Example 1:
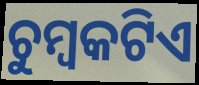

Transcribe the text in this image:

ଚୁମ୍ବକଟିଏ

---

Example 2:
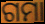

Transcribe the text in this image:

ଗମା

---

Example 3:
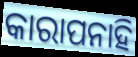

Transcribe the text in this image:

କାରାପନାହି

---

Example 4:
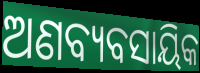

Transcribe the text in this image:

ଅଣବ୍ୟବସାୟିକ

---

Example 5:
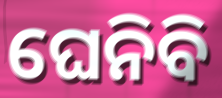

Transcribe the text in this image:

ଘେନିବି